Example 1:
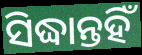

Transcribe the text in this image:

ସିଦ୍ଧାନ୍ତହିଁ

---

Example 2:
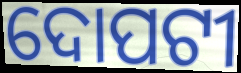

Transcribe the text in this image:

ଦୋପଟୀ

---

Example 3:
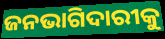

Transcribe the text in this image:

ଜନଭାଗିଦାରୀକୁ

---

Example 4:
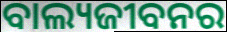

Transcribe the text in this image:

ବାଲ୍ୟଜୀବନର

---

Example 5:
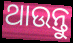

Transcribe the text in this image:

ଥାଉନ୍ତୁ